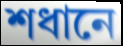
শধানে